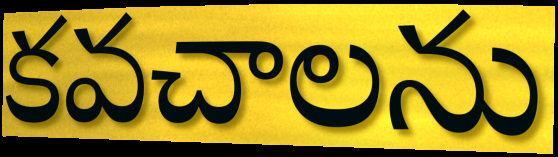
కవచాలను